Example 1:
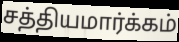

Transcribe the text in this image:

சத்தியமார்க்கம்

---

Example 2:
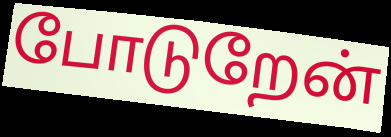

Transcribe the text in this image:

போடுறேன்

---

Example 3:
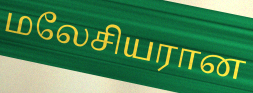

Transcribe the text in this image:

மலேசியரான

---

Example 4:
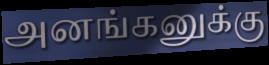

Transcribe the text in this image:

அனங்கனுக்கு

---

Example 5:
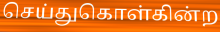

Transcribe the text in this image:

செய்துகொள்கின்ற